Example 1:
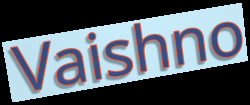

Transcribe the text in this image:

Vaishno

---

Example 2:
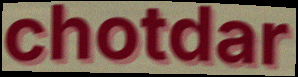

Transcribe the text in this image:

chotdar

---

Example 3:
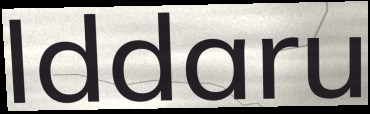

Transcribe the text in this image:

Iddaru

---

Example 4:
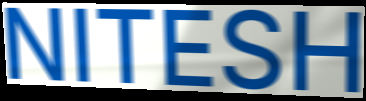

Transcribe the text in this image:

NITESH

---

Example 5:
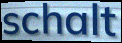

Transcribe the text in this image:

schalt